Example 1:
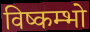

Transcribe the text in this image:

विष्कम्भो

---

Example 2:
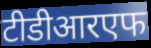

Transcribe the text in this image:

टीडीआरएफ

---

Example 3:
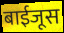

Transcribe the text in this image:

बाईजूस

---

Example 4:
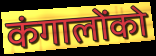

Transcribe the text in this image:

कंगालोंको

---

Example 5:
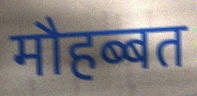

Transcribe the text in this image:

मौहब्बत